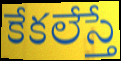
కేకలేస్తే